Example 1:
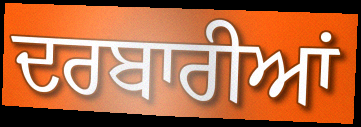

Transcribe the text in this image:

ਦਰਬਾਰੀਆਂ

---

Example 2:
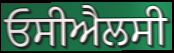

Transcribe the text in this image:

ਓਸੀਐਲਸੀ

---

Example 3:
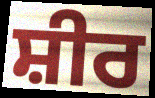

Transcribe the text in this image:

ਸ਼ੀਰ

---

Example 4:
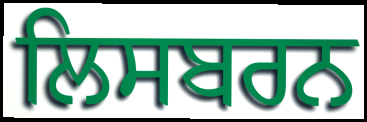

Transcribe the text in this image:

ਲਿਸਬਰਨ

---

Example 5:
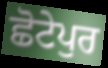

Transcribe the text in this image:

ਛੋਟੇਪੁਰ